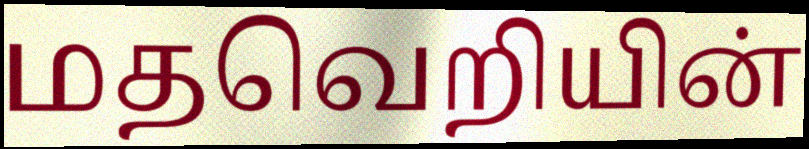
மதவெறியின்